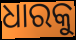
ଧାରକୁ